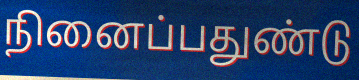
நினைப்பதுண்டு